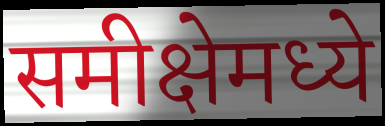
समीक्षेमध्ये